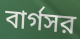
বার্গসর